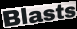
Blasts